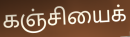
கஞ்சியைக்